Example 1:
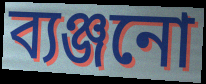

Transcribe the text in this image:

ব্যঞ্জনো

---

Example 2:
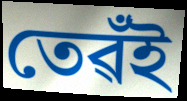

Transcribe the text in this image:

তেৱঁই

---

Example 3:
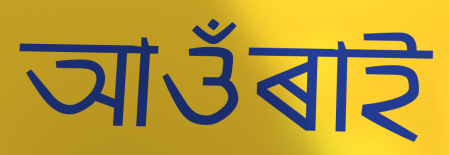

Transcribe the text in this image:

আওঁৰাই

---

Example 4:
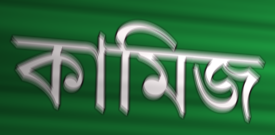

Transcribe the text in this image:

কামিজ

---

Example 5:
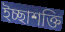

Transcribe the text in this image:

ইচ্ছাশক্তি